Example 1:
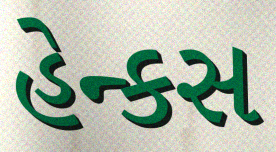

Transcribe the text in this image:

હેન્કસ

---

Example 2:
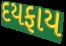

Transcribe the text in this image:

દયફાય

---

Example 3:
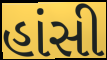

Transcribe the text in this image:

હાંસી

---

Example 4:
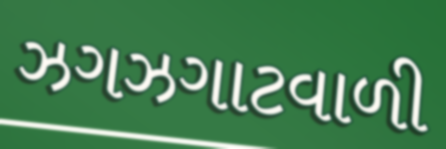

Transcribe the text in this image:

ઝગઝગાટવાળી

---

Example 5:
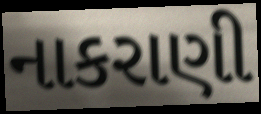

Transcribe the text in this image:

નાકરાણી